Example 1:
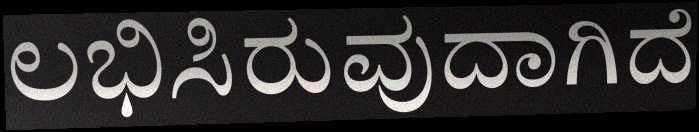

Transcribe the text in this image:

ಲಭಿಸಿರುವುದಾಗಿದೆ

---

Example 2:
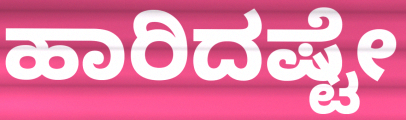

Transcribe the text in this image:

ಹಾರಿದಷ್ಟೇ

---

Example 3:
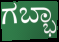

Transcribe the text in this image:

ಗಬ್ಭಾ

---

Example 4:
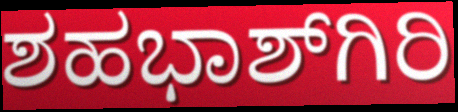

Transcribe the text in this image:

ಶಹಭಾಶ್‌ಗಿರಿ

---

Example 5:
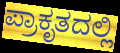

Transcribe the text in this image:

ಪ್ರಾಕೃತದಲ್ಲಿ